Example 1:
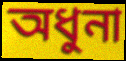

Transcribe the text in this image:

অধুনা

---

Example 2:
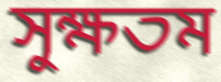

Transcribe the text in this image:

সুক্ষতম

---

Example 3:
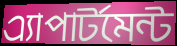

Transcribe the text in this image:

এ্যাপার্টমেন্ট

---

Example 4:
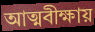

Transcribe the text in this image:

আত্মবীক্ষায়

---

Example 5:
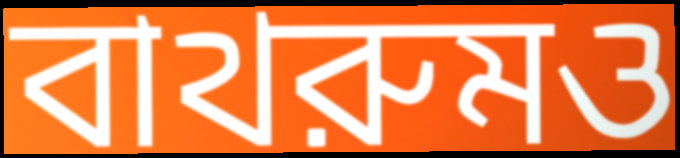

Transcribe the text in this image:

বাথরুমও